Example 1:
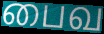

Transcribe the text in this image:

பைவ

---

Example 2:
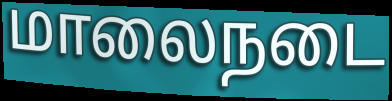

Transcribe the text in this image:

மாலைநடை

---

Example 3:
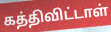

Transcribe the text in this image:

கத்திவிட்டாள்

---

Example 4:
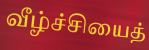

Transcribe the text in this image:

வீழ்ச்சியைத்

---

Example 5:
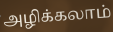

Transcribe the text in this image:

அழிக்கலாம்